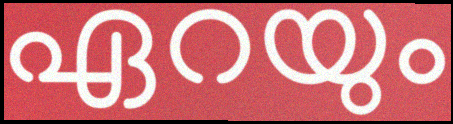
ഏറയും